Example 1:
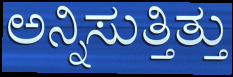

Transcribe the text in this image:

ಅನ್ನಿಸುತ್ತಿತ್ತು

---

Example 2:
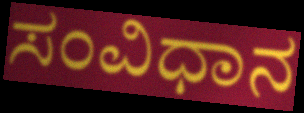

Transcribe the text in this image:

ಸಂವಿಧಾನ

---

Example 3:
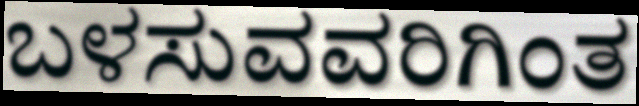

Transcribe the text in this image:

ಬಳಸುವವರಿಗಿಂತ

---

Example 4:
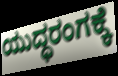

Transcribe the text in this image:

ಯುದ್ಧರಂಗಕ್ಕೆ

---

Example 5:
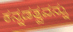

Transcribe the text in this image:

ಕನ್ನಡತ್ವವನ್ನು